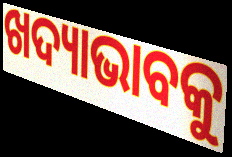
ଖଦ୍ୟାଭାବକୁ